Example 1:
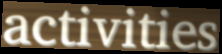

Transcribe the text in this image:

activities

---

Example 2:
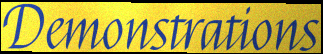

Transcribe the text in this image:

Demonstrations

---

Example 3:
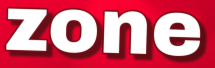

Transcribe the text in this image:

zone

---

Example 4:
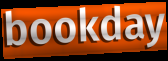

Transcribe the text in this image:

bookday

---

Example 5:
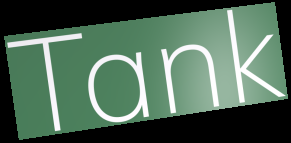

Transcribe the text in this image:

Tank